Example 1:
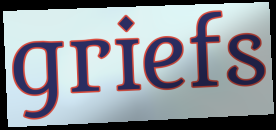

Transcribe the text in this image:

griefs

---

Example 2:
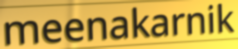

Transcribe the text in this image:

meenakarnik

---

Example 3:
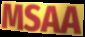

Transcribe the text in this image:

MSAA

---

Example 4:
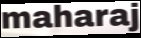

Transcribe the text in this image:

maharaj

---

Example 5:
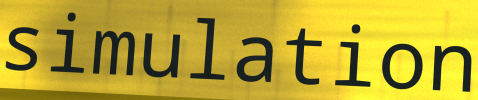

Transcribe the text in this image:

simulation